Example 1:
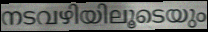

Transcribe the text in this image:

നടവഴിയിലൂടെയും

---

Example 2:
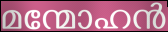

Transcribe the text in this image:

മന്മോഹൻ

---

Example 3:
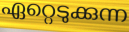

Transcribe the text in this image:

ഏറ്റെടുക്കുന്ന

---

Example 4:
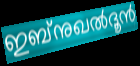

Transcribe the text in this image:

ഇബ്നുഖൽദൂൻ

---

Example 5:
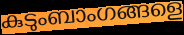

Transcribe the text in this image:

കുടുംബാംഗങ്ങളെ